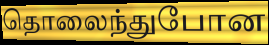
தொலைந்துபோன